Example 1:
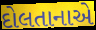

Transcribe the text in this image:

દોલતાનાએ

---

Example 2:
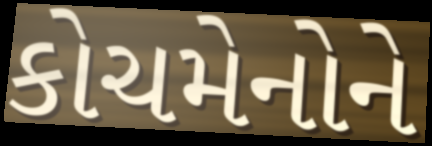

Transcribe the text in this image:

કોચમેનોને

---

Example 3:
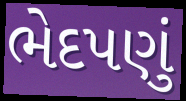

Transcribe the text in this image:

ભેદપણું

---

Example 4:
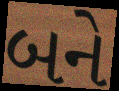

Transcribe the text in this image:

બને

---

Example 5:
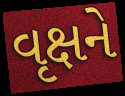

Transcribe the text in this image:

વૃક્ષને